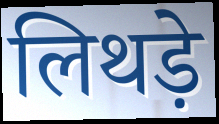
लिथड़े